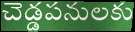
చెడ్డపనులకు